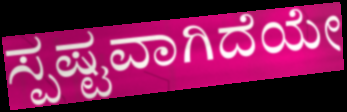
ಸ್ಪಷ್ಟವಾಗಿದೆಯೇ